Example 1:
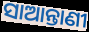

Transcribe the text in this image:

ସାଆନ୍ତାଣୀ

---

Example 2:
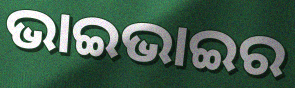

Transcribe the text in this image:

ଭାଇଭାଇର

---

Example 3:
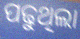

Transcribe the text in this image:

ପଢୁଥିଲା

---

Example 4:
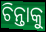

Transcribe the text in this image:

ଚିନ୍ତାକୁ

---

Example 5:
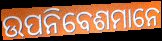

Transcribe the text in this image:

ଉପନିବେଶମାନେ